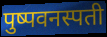
पुष्पवनस्पती